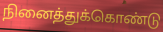
நினைத்துக்கொண்டு